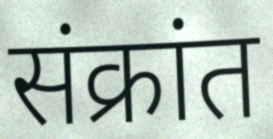
संक्रांत